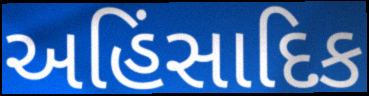
અહિંસાદિક